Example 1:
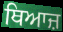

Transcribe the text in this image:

ਥਿਆਜ਼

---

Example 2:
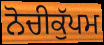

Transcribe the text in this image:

ਨੋਚੀਕੁੱਪਮ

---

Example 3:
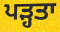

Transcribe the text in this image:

ਪੜ੍ਹਤਾ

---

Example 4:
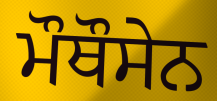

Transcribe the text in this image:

ਮੌਥੌਸੇਨ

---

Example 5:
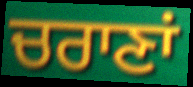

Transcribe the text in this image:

ਚਰਾਣਾਂ